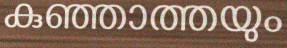
കുഞ്ഞാത്തയും